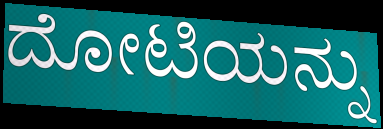
ದೋಟಿಯನ್ನು